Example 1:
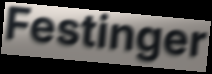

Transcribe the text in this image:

Festinger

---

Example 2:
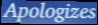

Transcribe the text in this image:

Apologizes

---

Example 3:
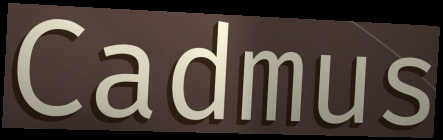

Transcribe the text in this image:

Cadmus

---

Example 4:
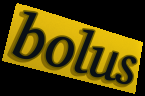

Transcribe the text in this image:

bolus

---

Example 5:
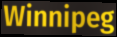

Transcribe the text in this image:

Winnipeg